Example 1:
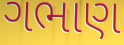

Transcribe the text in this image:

ગભાણ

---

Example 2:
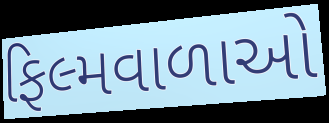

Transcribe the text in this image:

ફિલ્મવાળાઓ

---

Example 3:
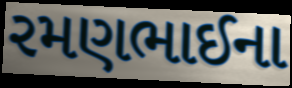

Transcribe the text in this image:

રમણભાઈના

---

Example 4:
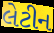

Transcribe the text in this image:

લેટીન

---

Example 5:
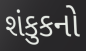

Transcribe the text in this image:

શંકુકનો